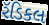
રૅડિકલ